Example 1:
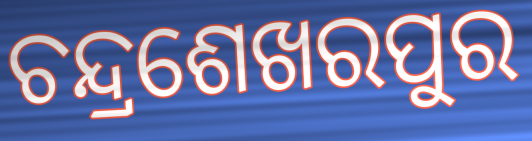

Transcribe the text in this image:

ଚନ୍ଦ୍ରଶେଖରପୁର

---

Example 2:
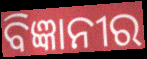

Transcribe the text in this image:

ବିଜ୍ଞାନୀର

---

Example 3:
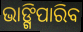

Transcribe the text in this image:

ଭାଙ୍ଗିପାରିବ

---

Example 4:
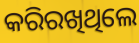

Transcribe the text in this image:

କରିରଖିଥିଲେ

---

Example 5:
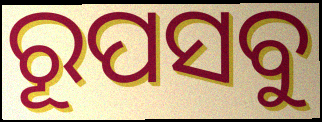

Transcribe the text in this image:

ରୂପସବୁ